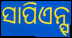
ସାପିଏନ୍ସ୍